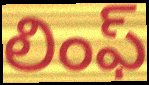
లింఫ్